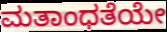
ಮತಾಂಧತೆಯೇ